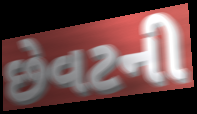
છેવટની